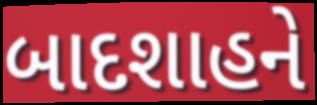
બાદશાહને